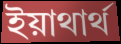
ইয়াথার্থ